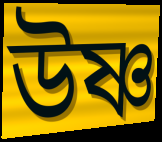
উষ্ণ